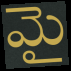
మై